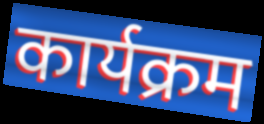
कार्यक्रम